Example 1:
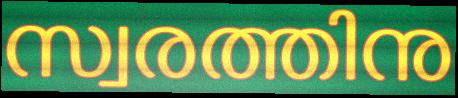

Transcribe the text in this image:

സ്വരത്തിനു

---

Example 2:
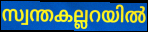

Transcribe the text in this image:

സ്വന്തകല്ലറയിൽ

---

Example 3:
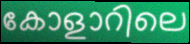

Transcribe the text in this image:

കോളാറിലെ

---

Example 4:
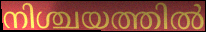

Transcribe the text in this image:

നിശ്ചയത്തിൽ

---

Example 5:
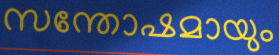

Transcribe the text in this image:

സന്തോഷമായും